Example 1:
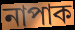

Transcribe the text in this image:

নাপাক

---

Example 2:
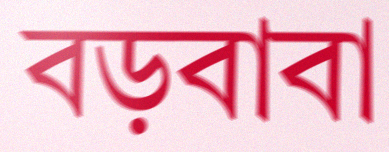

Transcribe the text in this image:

বড়বাবা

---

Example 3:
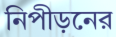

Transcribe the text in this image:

নিপীড়নের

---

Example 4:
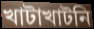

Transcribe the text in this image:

খাটাখাটনি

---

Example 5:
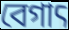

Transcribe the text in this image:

বেগাৎ